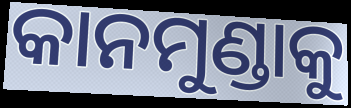
କାନମୁଣ୍ଡାକୁ